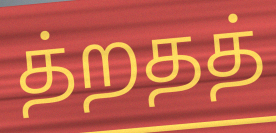
த்றதத்